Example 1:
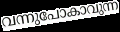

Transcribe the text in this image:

വന്നുപോകാവുന്ന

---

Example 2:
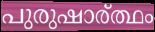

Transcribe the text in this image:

പുരുഷാര്ത്ഥം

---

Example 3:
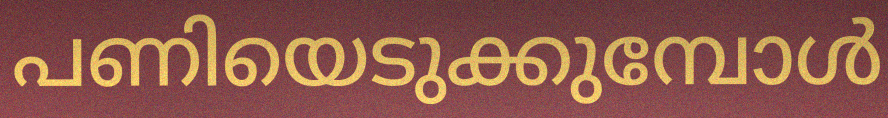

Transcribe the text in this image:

പണിയെടുക്കുമ്പോൾ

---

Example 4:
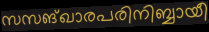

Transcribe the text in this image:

സസങ്ഖാരപരിനിബ്ബായീ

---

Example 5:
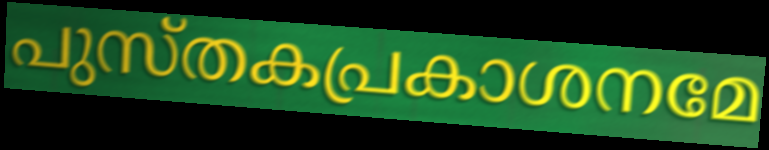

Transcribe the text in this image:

പുസ്തകപ്രകാശനമേ